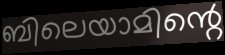
ബിലെയാമിന്റെ